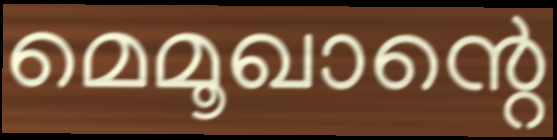
മെമൂഖാന്റെ